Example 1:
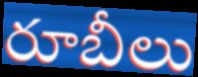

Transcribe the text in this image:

రూబీలు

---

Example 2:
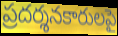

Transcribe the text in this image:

ప్రదర్శనకారులపై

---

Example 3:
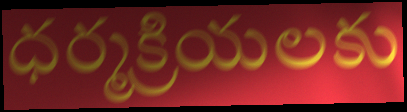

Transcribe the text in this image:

ధర్మక్రియలకు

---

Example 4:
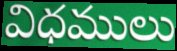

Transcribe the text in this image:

విధములు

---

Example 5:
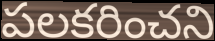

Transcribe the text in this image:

పలకరించని